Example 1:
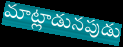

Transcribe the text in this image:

మాట్లాడునపుడు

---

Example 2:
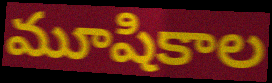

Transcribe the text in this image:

మూషికాల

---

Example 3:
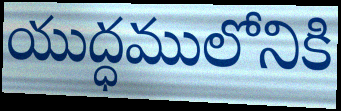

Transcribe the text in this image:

యుద్ధములోనికి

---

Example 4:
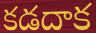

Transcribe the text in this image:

కడదాక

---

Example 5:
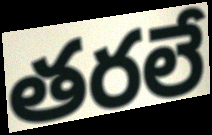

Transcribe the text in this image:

తరలే